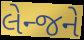
લેન્જને